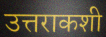
उत्तराकशी